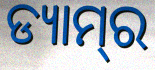
ଡ୍ୟାମ୍‍ର